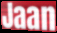
Jaan